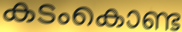
കടംകൊണ്ട